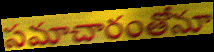
సమాచారంతోనూ